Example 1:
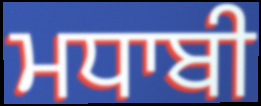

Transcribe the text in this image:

ਮਧਾਬੀ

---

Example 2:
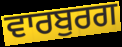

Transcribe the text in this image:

ਵਾਰਬੁਰਗ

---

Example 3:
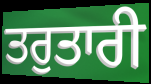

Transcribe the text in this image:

ਤਰੁਤਾਰੀ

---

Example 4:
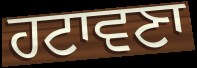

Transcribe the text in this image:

ਹਟਾਵਣਾ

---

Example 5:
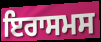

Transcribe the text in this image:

ਇਰਾਸਮਸ